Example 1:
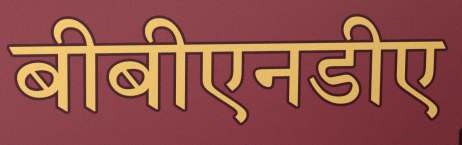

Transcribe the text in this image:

बीबीएनडीए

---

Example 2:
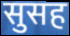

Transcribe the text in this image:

सुसह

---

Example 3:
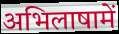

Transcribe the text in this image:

अभिलाषामें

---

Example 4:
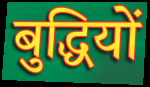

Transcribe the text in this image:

बुद्धियों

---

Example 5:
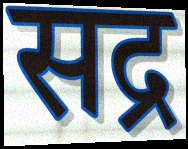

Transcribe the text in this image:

सद्र